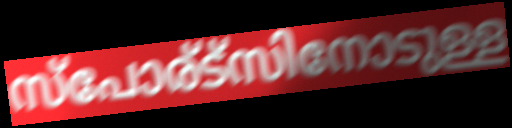
സ്പോര്ട്സിനോടുള്ള